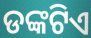
ଡଙ୍କଟିଏ